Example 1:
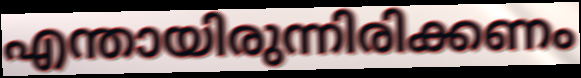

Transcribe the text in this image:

എന്തായിരുന്നിരിക്കണം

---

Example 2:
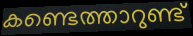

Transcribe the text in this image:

കണ്ടെത്താറുണ്ട്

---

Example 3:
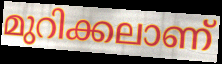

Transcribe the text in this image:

മുറിക്കലാണ്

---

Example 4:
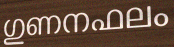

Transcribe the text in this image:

ഗുണനഫലം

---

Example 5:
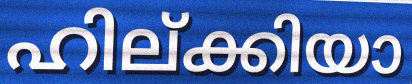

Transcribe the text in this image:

ഹില്ക്കിയാ